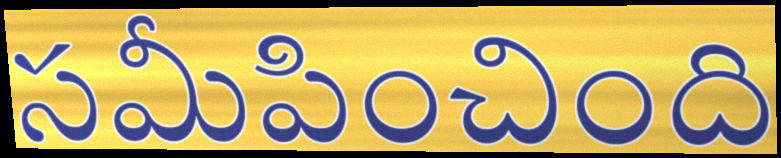
సమీపించింది